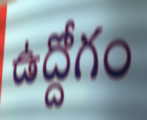
ఉద్దోగం